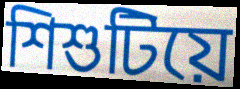
শিশুটিয়ে